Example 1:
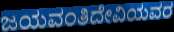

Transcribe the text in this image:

ಜಯವಂತಿದೇವಿಯವರ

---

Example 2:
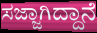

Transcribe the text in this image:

ಸಜ್ಜಾಗಿದ್ದಾನೆ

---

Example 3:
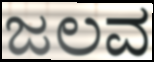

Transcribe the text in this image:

ಜಲವ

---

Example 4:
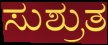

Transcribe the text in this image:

ಸುಶ್ರುತ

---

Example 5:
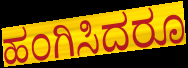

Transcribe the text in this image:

ಹಂಗಿಸಿದರೂ